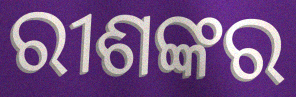
ରୀଶଙ୍କର